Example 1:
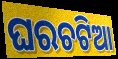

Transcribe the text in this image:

ଘରଚଟିଆ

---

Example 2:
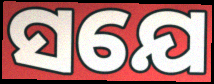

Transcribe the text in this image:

ସଯେ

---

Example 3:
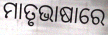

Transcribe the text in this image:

ମାତୃଭାଷାରେ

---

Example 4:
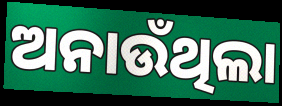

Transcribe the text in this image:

ଅନାଉଁଥିଲା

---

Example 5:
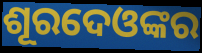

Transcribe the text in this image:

ଶୂରଦେଓଙ୍କର